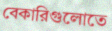
বেকারিগুলোতে